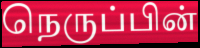
நெருப்பின்